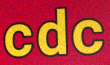
cdc